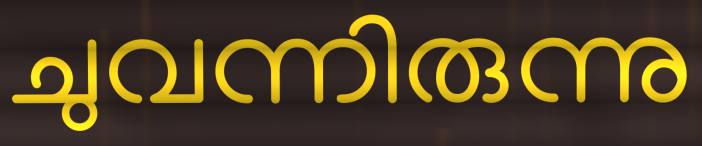
ചുവന്നിരുന്നു